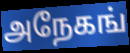
அநேகங்